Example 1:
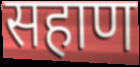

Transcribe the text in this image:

सहाण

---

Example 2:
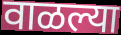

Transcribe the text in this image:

वाळल्या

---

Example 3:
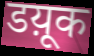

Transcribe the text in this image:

डय़ूक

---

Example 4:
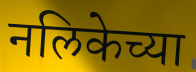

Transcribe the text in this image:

नलिकेच्या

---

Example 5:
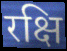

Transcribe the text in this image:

रक्षि